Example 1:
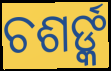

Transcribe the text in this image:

ଚଶର୍ଙ୍କ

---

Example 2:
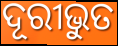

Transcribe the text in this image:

ଦୂରୀଭୁତ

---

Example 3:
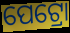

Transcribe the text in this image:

ପେଟ୍ରୋ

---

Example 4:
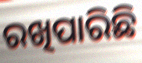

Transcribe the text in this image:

ରଖିପାରିଛି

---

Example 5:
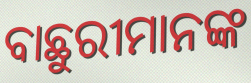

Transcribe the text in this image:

ବାଛୁରୀମାନଙ୍କ